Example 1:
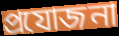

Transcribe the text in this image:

প্ৰযোজনা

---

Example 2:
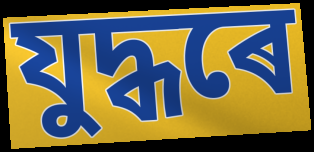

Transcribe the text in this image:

যুদ্ধৰে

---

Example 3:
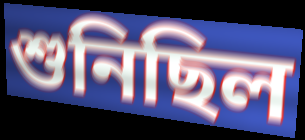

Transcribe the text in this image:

শুনিছিল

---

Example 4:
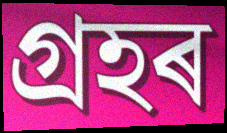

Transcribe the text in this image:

গ্ৰহৰ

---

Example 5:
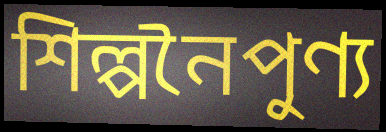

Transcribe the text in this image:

শিল্পনৈপুণ্য